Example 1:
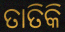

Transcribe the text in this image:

ତାତିକି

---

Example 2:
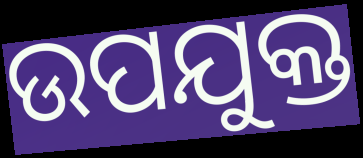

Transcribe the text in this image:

ଉପଯୁକ୍ତ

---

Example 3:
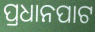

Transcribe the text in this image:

ପ୍ରଧାନପାଟ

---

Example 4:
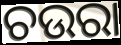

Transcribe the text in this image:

ଚଉରା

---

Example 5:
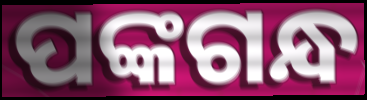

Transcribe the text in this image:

ପଙ୍କଗନ୍ଧ